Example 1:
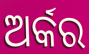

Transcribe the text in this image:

ଅର୍କର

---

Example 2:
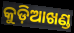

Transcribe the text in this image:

କୁଡ଼ିଆଖଣ୍ଡ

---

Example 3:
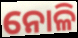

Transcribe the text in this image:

ନୋଳି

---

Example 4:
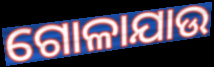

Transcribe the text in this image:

ଗୋଳାଯାଉ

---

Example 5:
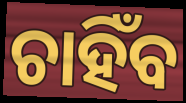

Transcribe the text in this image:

ଚାହିଁବ